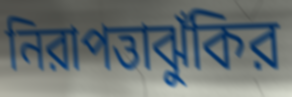
নিরাপত্তাঝুঁকির